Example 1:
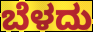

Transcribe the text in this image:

ಬೆಳದು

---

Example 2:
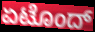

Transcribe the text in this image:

ಏಟೊಂದ್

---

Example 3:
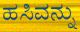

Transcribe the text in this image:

ಹಸಿವನ್ನು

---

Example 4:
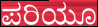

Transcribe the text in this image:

ಪರಿಯೂ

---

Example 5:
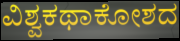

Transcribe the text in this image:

ವಿಶ್ವಕಥಾಕೋಶದ